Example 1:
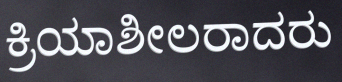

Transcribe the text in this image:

ಕ್ರಿಯಾಶೀಲರಾದರು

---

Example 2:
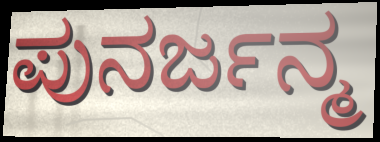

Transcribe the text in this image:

ಪುನರ್ಜನ್ಮ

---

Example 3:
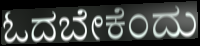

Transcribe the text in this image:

ಓದಬೇಕೆಂದು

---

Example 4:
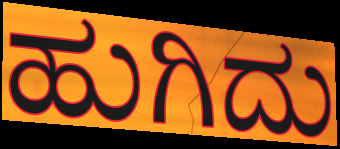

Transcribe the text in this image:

ಹುಗಿದು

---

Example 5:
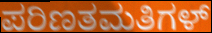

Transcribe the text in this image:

ಪರಿಣತಮತಿಗಳ್